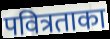
पवित्रताका